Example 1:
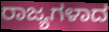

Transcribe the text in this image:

ರಾಜ್ಯಗಳಾದ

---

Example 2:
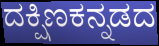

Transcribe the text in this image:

ದಕ್ಷಿಣಕನ್ನಡದ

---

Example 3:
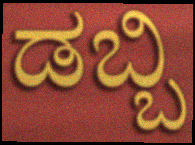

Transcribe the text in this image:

ಡಬ್ಬಿ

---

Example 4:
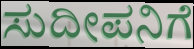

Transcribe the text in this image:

ಸುದೀಪನಿಗೆ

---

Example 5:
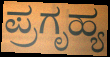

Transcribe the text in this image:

ಪ್ರಗೃಹ್ಯ